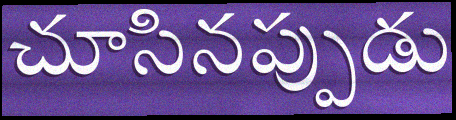
చూసినప్పుడు